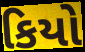
કિયો